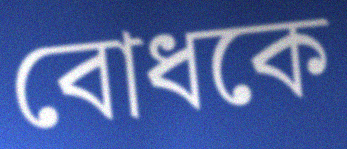
বোধকে